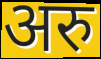
अरु